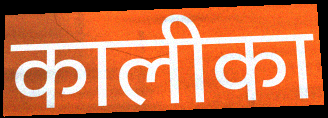
कालीका